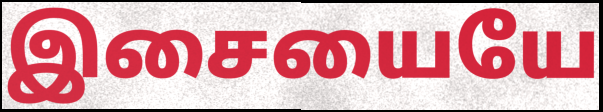
இசையையே